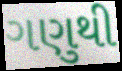
ગણુથી